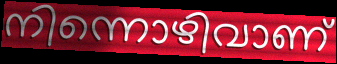
നിന്നൊഴിവാണ്